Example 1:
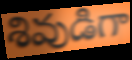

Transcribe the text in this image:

శివుడిగా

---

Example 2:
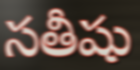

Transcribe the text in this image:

సతీషు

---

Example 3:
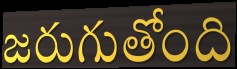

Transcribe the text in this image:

జరుగుతోంది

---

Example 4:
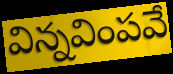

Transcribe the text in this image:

విన్నవింపవే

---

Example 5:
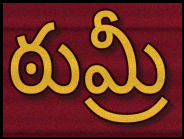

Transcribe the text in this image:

ఠుమ్రీ